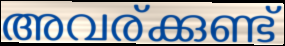
അവര്ക്കുണ്ട്